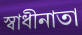
স্বাধীনাতা